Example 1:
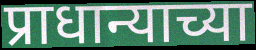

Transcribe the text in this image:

प्राधान्याच्या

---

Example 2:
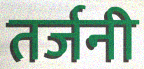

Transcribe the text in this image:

तर्जनी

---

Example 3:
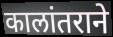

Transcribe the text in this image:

कालांतराने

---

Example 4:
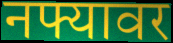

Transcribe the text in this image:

नफ्यावर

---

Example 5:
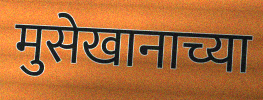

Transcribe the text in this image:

मुसेखानाच्या